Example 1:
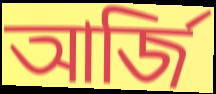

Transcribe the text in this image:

আর্জি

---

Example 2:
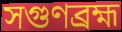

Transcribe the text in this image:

সগুণব্রহ্ম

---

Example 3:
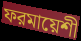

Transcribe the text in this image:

ফরমায়েশী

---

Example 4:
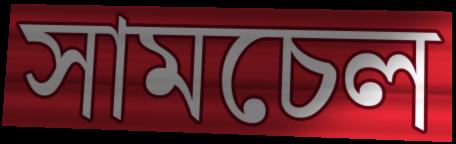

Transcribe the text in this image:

সামচেল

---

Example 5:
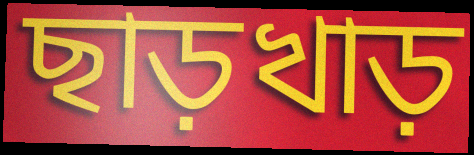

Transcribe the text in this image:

ছাড়খাড়